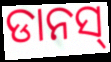
ଡାନସ୍